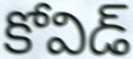
కోవిడ్